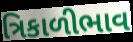
ત્રિકાળીભાવ